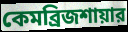
কেমব্রিজশায়ার